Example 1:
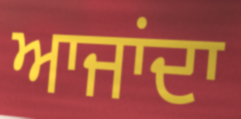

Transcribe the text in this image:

ਆਜਾਂਦਾ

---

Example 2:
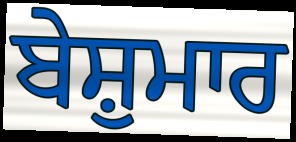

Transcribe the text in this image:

ਬੇਸ਼ੁਮਾਰ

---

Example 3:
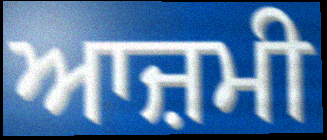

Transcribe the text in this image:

ਆਜ਼ਮੀ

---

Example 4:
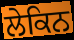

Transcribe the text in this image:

ਲੇਕਿਨ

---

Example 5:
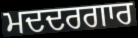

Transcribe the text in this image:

ਮਦਦਰਗਾਰ